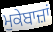
ਮੁਕੇਬਾਜ਼ਾਂ